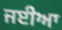
ਜਈਆ